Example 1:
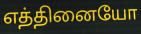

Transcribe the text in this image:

எத்தினையோ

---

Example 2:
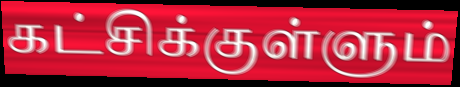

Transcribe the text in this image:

கட்சிக்குள்ளும்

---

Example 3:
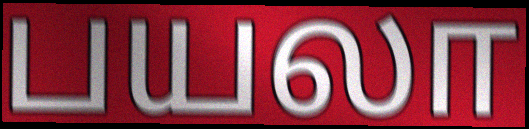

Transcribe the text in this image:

பயலா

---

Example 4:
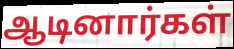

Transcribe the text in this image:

ஆடினார்கள்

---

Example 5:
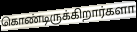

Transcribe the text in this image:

கொண்டிருக்கிறார்களா